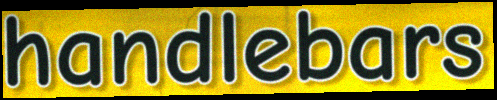
handlebars